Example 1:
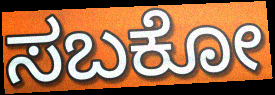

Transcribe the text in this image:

ಸಬಕೋ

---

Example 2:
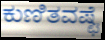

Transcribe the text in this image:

ಕುಣಿತವಷ್ಟೆ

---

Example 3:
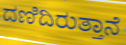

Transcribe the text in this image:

ದಣಿದಿರುತ್ತಾನೆ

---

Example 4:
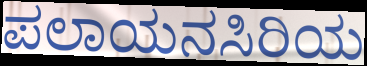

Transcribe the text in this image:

ಪಲಾಯನಸಿರಿಯ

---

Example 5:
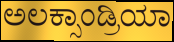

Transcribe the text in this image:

ಅಲಕ್ಸಾಂಡ್ರಿಯಾ